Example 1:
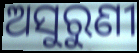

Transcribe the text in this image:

ଅସୁରୁଣୀ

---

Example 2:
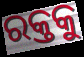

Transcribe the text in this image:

ରକ୍ତକୁ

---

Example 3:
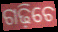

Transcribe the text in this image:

ଗଢ଼ିଚେ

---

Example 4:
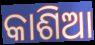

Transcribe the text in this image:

କାଶିଆ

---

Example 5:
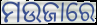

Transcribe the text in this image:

ମଉଜାରେ